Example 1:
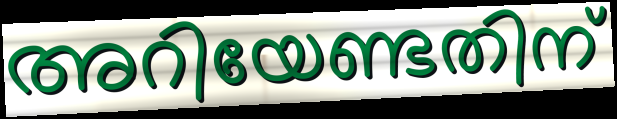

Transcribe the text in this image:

അറിയേണ്ടതിന്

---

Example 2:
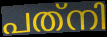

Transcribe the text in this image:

പത്‌നി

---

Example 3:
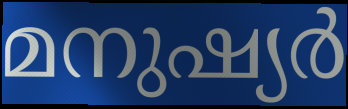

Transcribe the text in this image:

മനുഷ്യർ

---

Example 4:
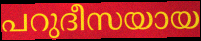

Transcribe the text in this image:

പറുദീസയായ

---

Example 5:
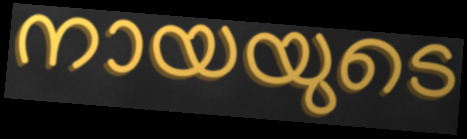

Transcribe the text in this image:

നായയുടെ